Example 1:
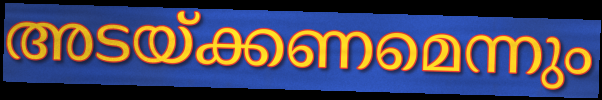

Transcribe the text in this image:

അടയ്ക്കണമെന്നും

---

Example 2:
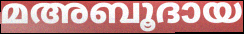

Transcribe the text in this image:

മഅബൂദായ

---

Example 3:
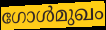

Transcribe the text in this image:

ഗോൾമുഖം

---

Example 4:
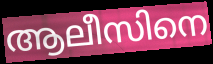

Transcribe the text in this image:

ആലീസിനെ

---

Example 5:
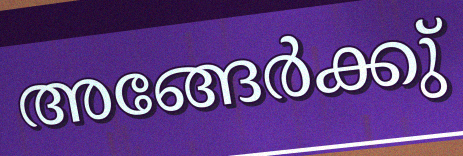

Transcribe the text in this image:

അങ്ങേർക്കു്